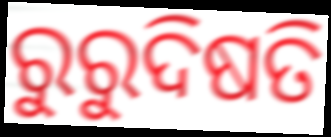
ରୁରୁଦିଷତି